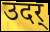
उदर्